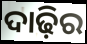
ଦାଢ଼ିର